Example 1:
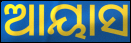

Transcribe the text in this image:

ଆୟାସ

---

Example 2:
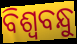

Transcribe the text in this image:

ବିଶ୍ୱବନ୍ଧୁ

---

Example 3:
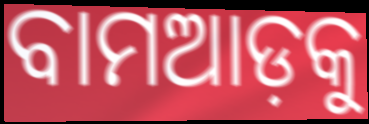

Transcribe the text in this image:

ବାମଆଡ଼କୁ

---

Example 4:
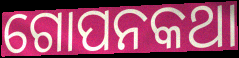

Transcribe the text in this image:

ଗୋପନକଥା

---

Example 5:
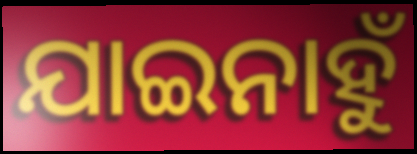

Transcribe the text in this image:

ଯାଇନାହୁଁ